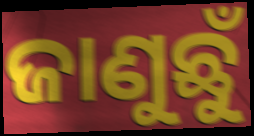
ଜାଣୁଛୁଁ